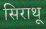
सिराथू